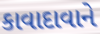
કાવાદાવાને